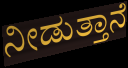
ನೀಡುತ್ತಾನೆ